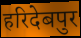
हरिदेबपुर